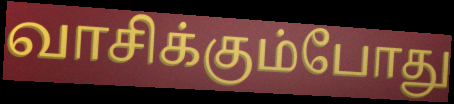
வாசிக்கும்போது